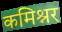
कमिश्नर